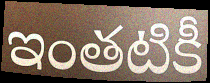
ఇంతటికీ